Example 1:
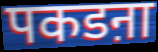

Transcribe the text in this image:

पकडऩा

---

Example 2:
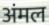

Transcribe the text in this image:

अंमल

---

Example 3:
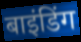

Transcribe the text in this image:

बाइंडिंग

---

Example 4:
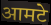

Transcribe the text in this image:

आमटे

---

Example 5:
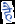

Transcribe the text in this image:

है